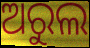
ଅରୁଲ